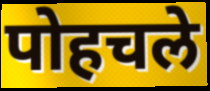
पोहचले